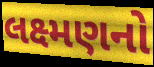
લક્ષ્મણનો